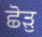
ਛੋੜੁ